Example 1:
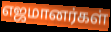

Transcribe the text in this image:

எஜமானர்கள்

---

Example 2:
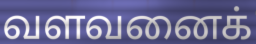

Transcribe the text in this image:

வளவனைக்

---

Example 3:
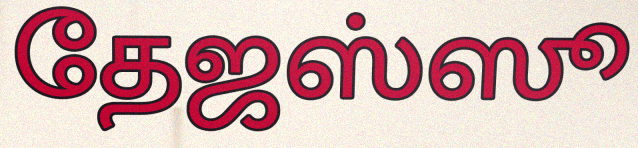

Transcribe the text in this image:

தேஜஸ்ஸூ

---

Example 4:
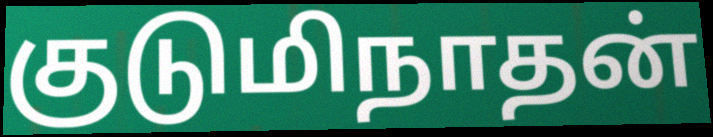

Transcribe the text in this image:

குடுமிநாதன்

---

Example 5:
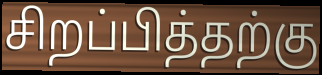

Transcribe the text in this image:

சிறப்பித்தற்கு